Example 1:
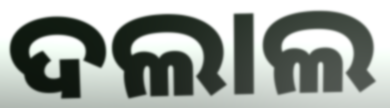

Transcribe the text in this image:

ଦଲାଲ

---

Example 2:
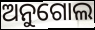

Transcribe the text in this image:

ଅନୁଗୋଲ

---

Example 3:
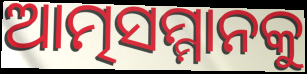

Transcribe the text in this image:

ଆତ୍ମସମ୍ମାନକୁ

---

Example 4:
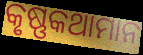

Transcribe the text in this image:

କୃଷ୍ଣକଥାମାନ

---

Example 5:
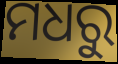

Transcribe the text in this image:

ମଧରୁ